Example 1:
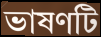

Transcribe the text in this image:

ভাষণটি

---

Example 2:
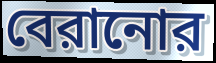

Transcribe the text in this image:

বেরানোর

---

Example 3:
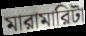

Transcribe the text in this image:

মারামারিটা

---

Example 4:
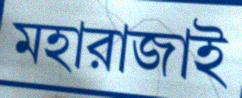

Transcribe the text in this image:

মহারাজাই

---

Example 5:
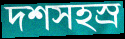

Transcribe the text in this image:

দশসহস্র